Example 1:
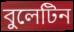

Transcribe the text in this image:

বুলেটিন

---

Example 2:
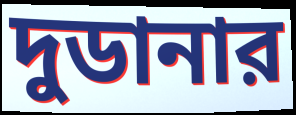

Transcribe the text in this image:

দুডানার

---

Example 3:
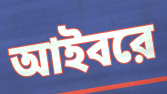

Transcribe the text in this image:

আইবরে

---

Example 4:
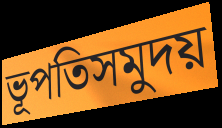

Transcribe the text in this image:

ভূপতিসমুদয়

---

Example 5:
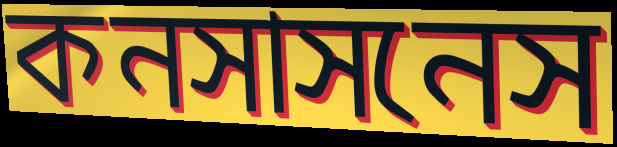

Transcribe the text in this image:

কনসাসনেস